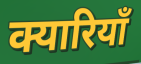
क्यारियाँ